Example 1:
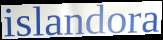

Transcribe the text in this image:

islandora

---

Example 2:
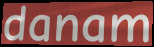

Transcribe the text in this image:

danam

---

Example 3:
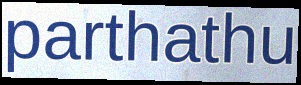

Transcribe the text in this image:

parthathu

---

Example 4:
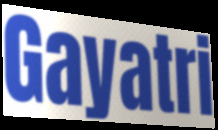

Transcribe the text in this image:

Gayatri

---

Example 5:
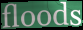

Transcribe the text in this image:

floods